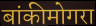
बांकीमोगरा